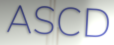
ASCD